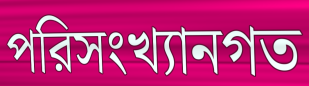
পরিসংখ্যানগত